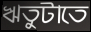
ঋতুটাতে